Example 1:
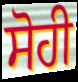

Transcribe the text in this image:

ਸੋਹੀ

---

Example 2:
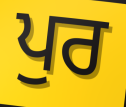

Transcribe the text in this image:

ਪੁਰ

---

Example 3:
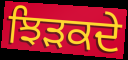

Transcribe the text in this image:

ਝਿੜਕਦੇ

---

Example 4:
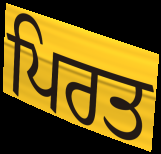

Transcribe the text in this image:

ਪਿਰਤ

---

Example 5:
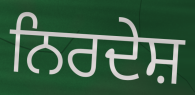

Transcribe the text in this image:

ਨਿਰਦੇਸ਼